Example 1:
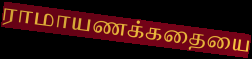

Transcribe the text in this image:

ராமாயணக்கதையை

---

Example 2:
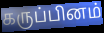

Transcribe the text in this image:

கருப்பினம்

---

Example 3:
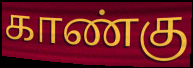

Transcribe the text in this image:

காண்கு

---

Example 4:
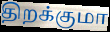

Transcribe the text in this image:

திறக்குமா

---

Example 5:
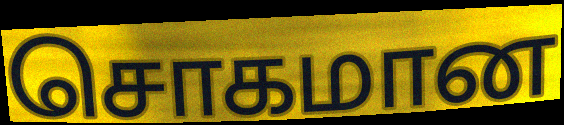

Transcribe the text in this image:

சொகமான